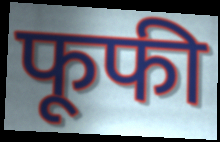
फूफी